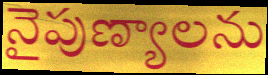
నైపుణ్యాలను